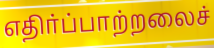
எதிர்ப்பாற்றலைச்